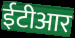
ईटीआर